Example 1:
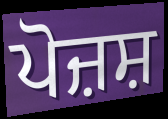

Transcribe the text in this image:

ਪੋਜ਼ਸ਼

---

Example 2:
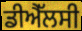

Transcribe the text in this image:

ਡੀਐੱਲਸੀ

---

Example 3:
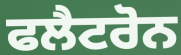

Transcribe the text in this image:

ਫਲੈਟਰੋਨ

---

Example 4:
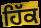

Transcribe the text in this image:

ਹਿੱਕ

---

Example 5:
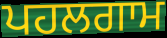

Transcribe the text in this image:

ਪਹਲਗਾਮ